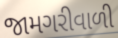
જામગરીવાળી